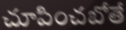
చూపించబోతే